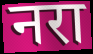
नरा